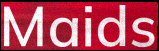
Maids